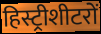
हिस्ट्रीशीटरों